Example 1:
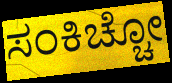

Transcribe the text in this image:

ಸಂಕಿಚ್ಚೋ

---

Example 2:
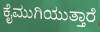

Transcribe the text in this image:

ಕೈಮುಗಿಯುತ್ತಾರೆ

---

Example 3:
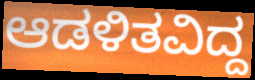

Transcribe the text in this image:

ಆಡಳಿತವಿದ್ದ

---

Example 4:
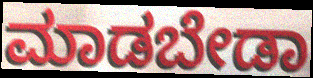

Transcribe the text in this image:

ಮಾಡಬೇಡಾ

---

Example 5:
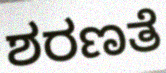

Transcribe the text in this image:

ಶರಣತೆ